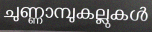
ചുണ്ണാമ്പുകല്ലുകൾ